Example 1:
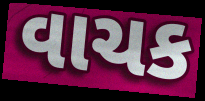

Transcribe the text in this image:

વાચક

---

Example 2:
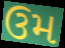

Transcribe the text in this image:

ઉમ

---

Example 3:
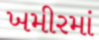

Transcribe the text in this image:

ખમીરમાં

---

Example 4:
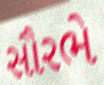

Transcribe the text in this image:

સૌરભે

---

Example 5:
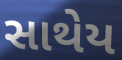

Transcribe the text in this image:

સાથેય